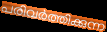
പരിവർത്തിക്കുന്ന